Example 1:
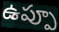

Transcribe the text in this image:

ఉప్పూ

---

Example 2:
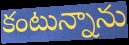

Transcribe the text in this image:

కంటున్నాను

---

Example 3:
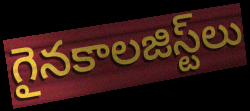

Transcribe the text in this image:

గైనకాలజిస్ట్‌లు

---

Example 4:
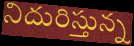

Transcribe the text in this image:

నిదురిస్తున్న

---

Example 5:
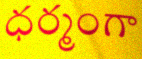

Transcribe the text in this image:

ధర్మంగా